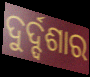
ଦୁର୍ଦ୍ଦଶାର